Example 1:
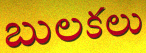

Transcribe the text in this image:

బులకలు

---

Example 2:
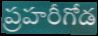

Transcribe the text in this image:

ప్రహరీగోడ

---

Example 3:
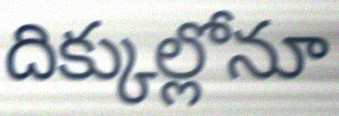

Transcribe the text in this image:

దిక్కుల్లోనూ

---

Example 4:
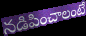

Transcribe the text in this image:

నడిపించాలంటే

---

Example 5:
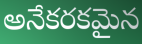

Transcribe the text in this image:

అనేకరకమైన